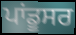
ਪਾਂਡੂਸਰ